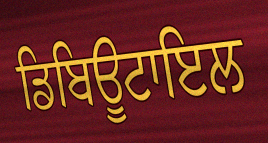
ਡਿਬਿਊਟਾਇਲ